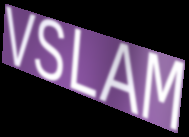
VSLAM